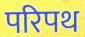
परिपथ